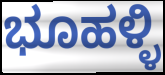
ಭೂಹಳ್ಳಿ